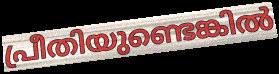
പ്രീതിയുണ്ടെങ്കിൽ